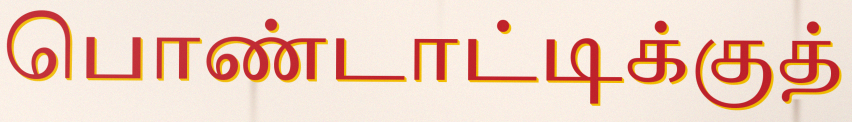
பொண்டாட்டிக்குத்